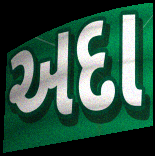
અદા